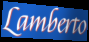
Lamberto